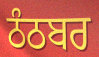
ਠੰਠਬਰ